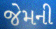
જેમની